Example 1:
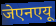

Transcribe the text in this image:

जेएनएयू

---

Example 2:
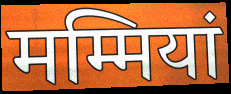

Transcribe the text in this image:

मम्मियां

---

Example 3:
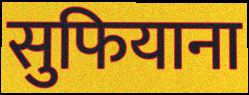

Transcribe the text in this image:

सुफियाना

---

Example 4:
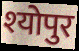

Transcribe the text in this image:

श्‍योपुर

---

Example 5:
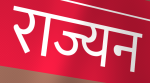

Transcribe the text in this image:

राज्यन